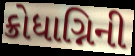
ક્રોધાગ્નિની